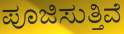
ಪೂಜಿಸುತ್ತಿವೆ